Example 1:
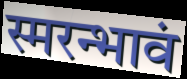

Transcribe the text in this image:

स्मरन्भावं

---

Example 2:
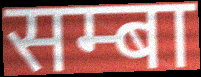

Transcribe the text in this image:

सम्बा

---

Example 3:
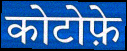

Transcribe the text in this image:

कोटोफ़े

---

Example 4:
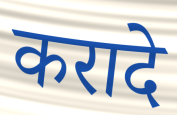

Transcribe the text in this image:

करादे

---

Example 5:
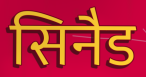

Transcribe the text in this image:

सिनैड